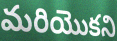
మరియొకని